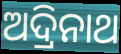
ଅଦ୍ରିନାଥ